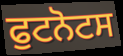
ਫੁਟਨੋਟਸ